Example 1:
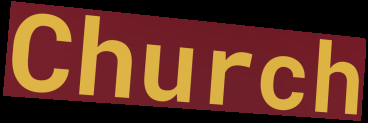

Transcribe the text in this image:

Church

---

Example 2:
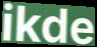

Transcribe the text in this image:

ikde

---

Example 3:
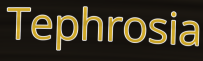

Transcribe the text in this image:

Tephrosia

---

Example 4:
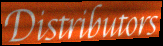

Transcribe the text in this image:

Distributors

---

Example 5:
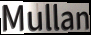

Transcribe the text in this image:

Mullan